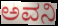
ಅವನಿ